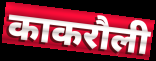
काकरौली